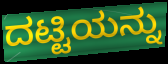
ದಟ್ಟಿಯನ್ನು